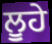
ਲੂਹੇ